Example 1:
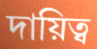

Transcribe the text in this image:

দায়িত্ব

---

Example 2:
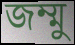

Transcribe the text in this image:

জম্মু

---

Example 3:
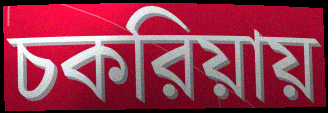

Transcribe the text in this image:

চকরিয়ায়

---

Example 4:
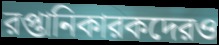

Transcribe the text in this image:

রপ্তানিকারকদেরও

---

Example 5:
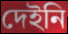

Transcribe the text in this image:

দেইনি